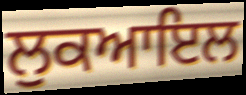
ਲੁਕਆਇਲ